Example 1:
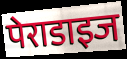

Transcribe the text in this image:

पेराडाइज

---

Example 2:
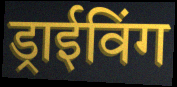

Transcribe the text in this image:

ड्राईविंग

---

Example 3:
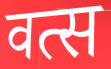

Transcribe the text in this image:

वत्स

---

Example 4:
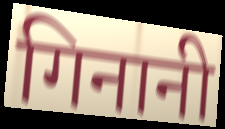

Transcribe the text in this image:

गिनानी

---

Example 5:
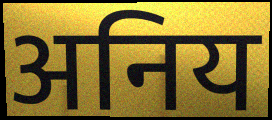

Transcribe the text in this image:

अनिय